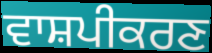
ਵਾਸ਼ਪੀਕਰਣ